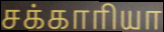
சக்காரியா